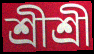
শ্ৰীশ্ৰী